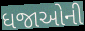
ધજાઓની